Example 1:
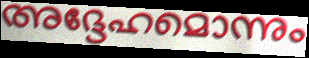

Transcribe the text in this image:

അദ്ദേഹമൊന്നും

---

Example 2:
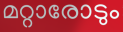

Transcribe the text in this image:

മറ്റാരോടും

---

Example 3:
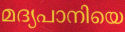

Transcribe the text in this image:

മദ്യപാനിയെ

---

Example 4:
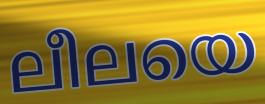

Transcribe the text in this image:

ലീലയെ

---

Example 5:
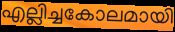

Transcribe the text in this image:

എല്ലിച്ചകോലമായി